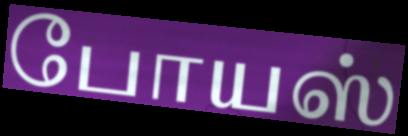
போயஸ்